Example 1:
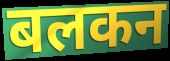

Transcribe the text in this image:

बलकन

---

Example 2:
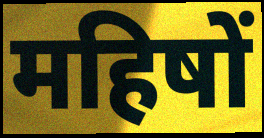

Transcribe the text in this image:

महिषों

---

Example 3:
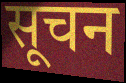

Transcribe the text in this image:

सूचन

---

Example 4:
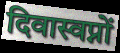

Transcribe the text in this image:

दिवास्वप्नों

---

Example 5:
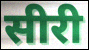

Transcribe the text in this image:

सीरी